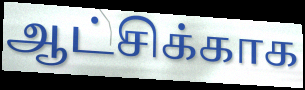
ஆட்சிக்காக